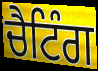
ਚੈਟਿੰਗ